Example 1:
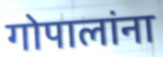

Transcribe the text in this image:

गोपालांना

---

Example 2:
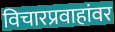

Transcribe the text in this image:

विचारप्रवाहांवर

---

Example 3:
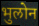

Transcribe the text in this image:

भुलोन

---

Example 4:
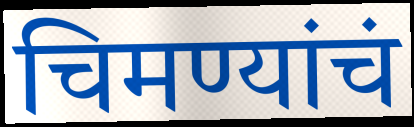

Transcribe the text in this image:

चिमण्यांचं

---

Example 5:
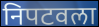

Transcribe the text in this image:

निपटवला